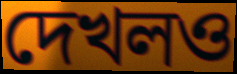
দেখলও